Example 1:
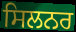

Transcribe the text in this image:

ਸਿਲਨਰ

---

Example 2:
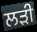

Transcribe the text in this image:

ਲਡ਼ੀ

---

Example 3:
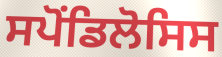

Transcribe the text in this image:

ਸਪੋਂਡਿਲੋਸਿਸ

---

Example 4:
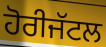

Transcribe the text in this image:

ਹੋਰੀਜੱਟਲ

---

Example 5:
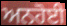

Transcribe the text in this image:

ਅਨਹੋਈ